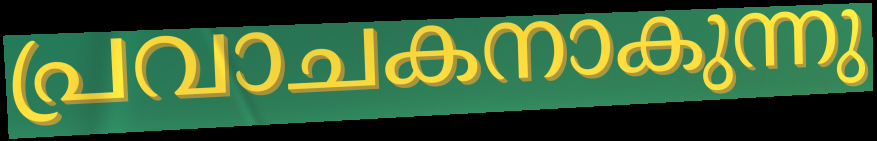
പ്രവാചകനാകുന്നു